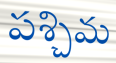
పశ్చిమ